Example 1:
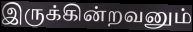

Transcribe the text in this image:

இருக்கின்றவனும்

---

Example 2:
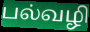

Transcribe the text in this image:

பல்வழி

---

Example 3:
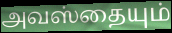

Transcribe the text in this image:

அவஸ்தையும்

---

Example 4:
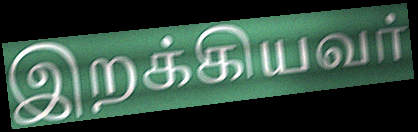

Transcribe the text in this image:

இறக்கியவர்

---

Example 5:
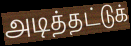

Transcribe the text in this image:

அடித்தட்டுக்